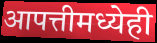
आपत्तीमध्येही